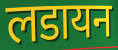
लडायन